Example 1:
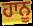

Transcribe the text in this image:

ਹਾਨੂ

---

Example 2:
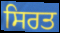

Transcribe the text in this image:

ਸਿਰਤ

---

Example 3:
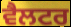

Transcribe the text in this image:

ਵੈਲਟਰ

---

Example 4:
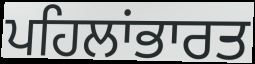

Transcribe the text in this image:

ਪਹਿਲਾਂਭਾਰਤ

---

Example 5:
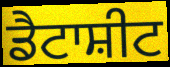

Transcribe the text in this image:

ਡੈਟਾਸ਼ੀਟ